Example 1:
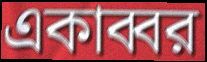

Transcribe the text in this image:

একাব্বর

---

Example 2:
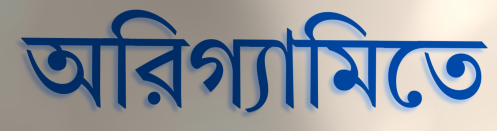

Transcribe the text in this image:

অরিগ্যামিতে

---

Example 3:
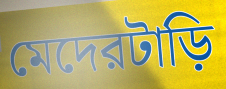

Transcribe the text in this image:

মেদেরটাড়ি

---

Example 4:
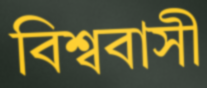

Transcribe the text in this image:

বিশ্ববাসী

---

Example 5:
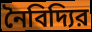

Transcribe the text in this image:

নৈবিদ্যির